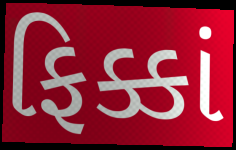
ફિક્કાં